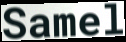
Samel